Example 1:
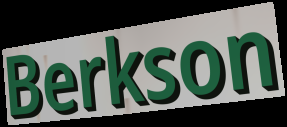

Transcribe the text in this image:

Berkson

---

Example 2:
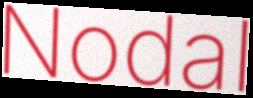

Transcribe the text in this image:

Nodal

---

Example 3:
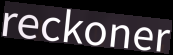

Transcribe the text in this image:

reckoner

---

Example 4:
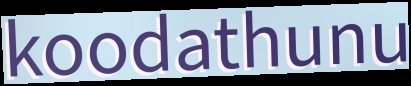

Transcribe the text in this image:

koodathunu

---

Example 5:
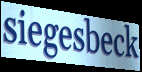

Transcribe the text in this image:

siegesbeck